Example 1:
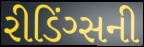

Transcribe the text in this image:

રીડિંગ્સની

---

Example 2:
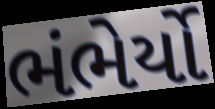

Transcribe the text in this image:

ભંભેર્યો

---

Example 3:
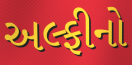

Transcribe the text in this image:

અલ્ફીનો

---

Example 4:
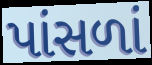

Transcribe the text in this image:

પાંસળાં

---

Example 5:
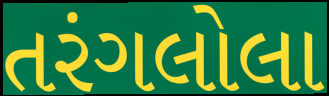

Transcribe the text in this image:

તરંગલોલા